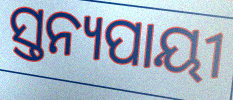
ସ୍ତନ୍ୟପାୟୀ